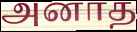
அனாத